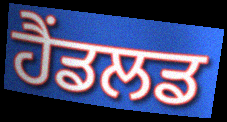
ਹੈਂਡਲਡ